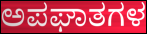
ಅಪಘಾತಗಳ